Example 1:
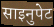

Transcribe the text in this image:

साइनुपेट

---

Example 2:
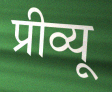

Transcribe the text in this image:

प्रीव्यू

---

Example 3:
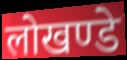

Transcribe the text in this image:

लोखण्डे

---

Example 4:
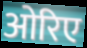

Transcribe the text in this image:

ओरिए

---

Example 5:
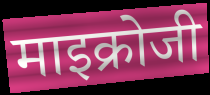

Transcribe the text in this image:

माइक्रोजी